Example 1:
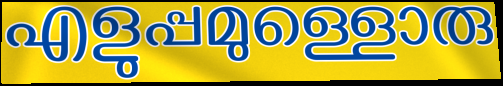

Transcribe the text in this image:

എളുപ്പമുള്ളൊരു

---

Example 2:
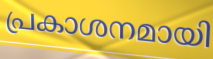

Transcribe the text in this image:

പ്രകാശനമായി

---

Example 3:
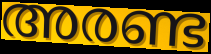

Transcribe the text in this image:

അരണ്ട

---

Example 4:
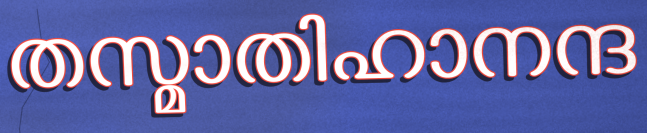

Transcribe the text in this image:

തസ്മാതിഹാനന്ദ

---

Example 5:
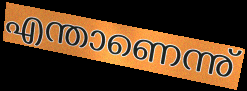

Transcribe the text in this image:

എന്താണെന്നു്